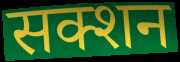
सक्शन